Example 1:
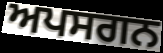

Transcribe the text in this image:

ਅਪਸਗਨ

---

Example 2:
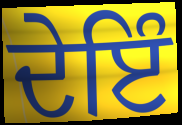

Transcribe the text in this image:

ਦੇਇੰ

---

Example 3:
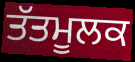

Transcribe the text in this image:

ਤੱਤਮੂਲਕ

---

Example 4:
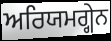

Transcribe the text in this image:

ਅਰਿਯਮਗ੍ਗੇਨ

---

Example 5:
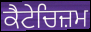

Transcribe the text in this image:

ਕੈਟੇਚਿਜ਼ਮ